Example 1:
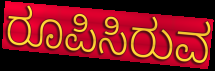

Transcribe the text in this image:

ರೂಪಿಸಿರುವ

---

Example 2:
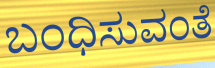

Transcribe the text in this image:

ಬಂಧಿಸುವಂತೆ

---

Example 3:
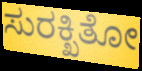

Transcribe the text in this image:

ಸುರಕ್ಖಿತೋ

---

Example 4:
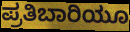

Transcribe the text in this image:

ಪ್ರತಿಬಾರಿಯೂ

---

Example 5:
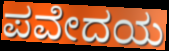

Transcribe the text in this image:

ಪವೇದಯ